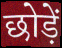
छोड़ें